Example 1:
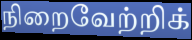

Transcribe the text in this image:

நிறைவேற்றிக்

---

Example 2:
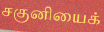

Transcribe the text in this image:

சகுனியைக்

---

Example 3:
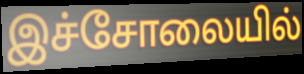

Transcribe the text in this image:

இச்சோலையில்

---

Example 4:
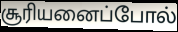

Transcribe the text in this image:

சூரியனைப்போல்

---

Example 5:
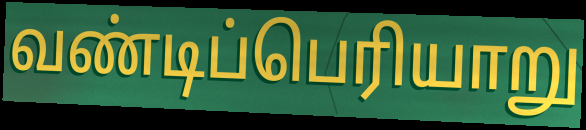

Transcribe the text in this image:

வண்டிப்பெரியாறு